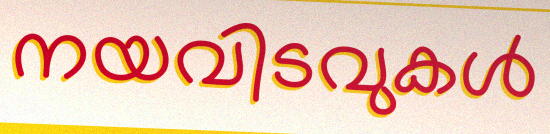
നയവിടവുകൾ